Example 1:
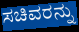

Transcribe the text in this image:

ಸಚಿವರನ್ನು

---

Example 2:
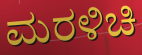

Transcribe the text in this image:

ಮರಳಿಚಿ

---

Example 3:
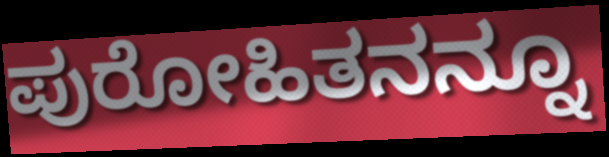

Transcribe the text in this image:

ಪುರೋಹಿತನನ್ನೂ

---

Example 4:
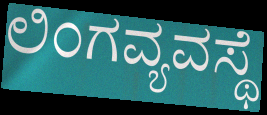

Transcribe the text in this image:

ಲಿಂಗವ್ಯವಸ್ಥೆ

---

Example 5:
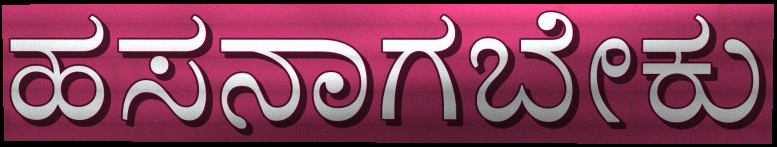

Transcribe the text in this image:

ಹಸನಾಗಬೇಕು